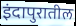
इंदापुरातील